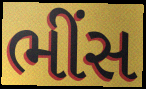
ભીંસ